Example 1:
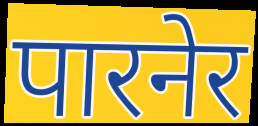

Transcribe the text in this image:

पारनेर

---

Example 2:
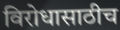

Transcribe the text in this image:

विरोधासाठीच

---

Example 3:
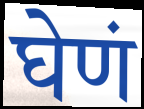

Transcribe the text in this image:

घेणं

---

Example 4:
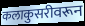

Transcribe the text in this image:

कलाकुसरीवरून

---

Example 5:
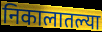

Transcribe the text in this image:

निकालातल्या